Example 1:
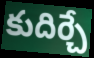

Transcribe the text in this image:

కుదిర్చే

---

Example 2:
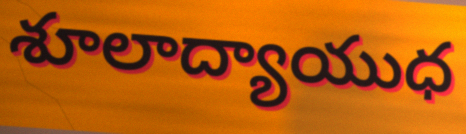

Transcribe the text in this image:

శూలాద్యాయుధ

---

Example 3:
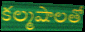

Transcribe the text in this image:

కల్మషాలతో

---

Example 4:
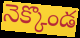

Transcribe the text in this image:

నెక్కొండ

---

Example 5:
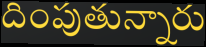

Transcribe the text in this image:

దింపుతున్నారు